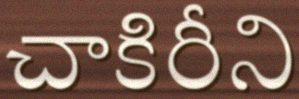
చాకిరీని